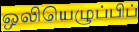
ஒலியெழுப்பிப்